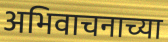
अभिवाचनाच्या